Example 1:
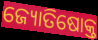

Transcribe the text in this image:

ଜ୍ୟୋତିଷୋକ୍ତ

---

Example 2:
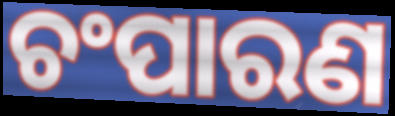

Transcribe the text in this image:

ଚଂପାରଣ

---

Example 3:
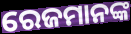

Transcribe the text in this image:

ରେଜମାନଙ୍କ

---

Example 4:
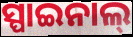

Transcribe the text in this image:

ସ୍ପାଇନାଲ୍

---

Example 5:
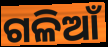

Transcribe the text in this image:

ଗଳିଆଁ